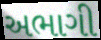
અભાગી